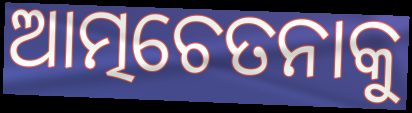
ଆତ୍ମଚେତନାକୁ